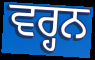
ਵਰ੍ਹਨ